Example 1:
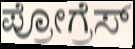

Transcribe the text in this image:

ಪ್ರೋಗ್ರೆಸ್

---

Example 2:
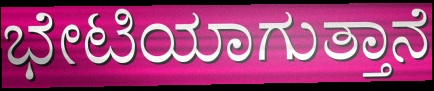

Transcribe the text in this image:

ಭೇಟಿಯಾಗುತ್ತಾನೆ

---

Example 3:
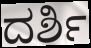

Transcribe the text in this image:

ದರ್ಶಿ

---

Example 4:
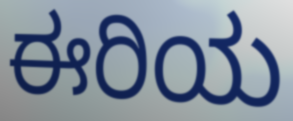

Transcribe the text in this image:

ಈರಿಯ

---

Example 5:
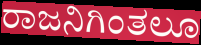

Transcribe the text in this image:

ರಾಜನಿಗಿಂತಲೂ